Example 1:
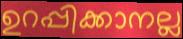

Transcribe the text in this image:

ഉറപ്പിക്കാനല്ല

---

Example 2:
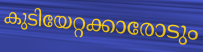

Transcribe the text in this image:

കുടിയേറ്റക്കാരോടും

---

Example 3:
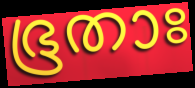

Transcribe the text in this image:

ഭൂതാഃ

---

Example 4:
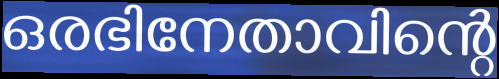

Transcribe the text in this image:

ഒരഭിനേതാവിന്റെ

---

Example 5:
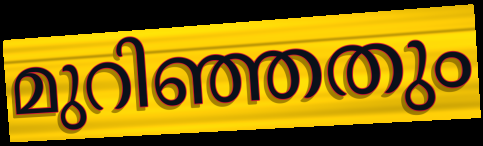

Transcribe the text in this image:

മുറിഞ്ഞതും